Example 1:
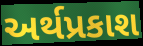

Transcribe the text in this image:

અર્થપ્રકાશ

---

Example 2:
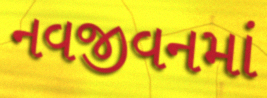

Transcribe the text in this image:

નવજીવનમાં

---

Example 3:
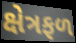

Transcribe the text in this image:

ક્ષેત્રફળ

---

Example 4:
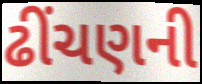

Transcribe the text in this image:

ઢીંચણની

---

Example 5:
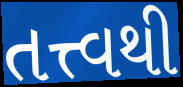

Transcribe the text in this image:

તત્ત્વથી